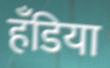
हँडिया